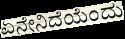
ಏನೇನಿದೆಯೆಂದು